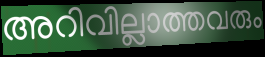
അറിവില്ലാത്തവരും